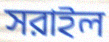
সরাইল